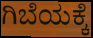
ಗಿಬೆಯಕ್ಕೆ